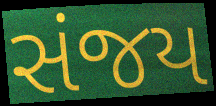
સંજય